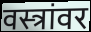
वस्त्रांवर